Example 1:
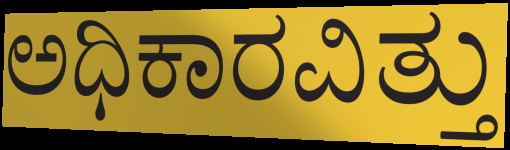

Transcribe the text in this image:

ಅಧಿಕಾರವಿತ್ತು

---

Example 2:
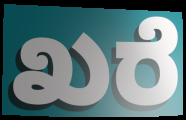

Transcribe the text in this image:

ಖರೆ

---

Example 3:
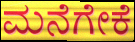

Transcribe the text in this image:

ಮನೆಗೇಕೆ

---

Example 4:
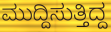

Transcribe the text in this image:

ಮುದ್ದಿಸುತ್ತಿದ್ದ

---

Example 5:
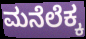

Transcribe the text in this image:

ಮನೆಲೆಕ್ಕ